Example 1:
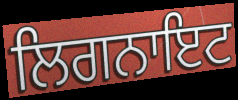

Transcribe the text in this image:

ਲਿਗਨਾਇਟ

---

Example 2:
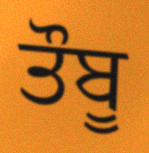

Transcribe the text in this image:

ਤੌਬੂ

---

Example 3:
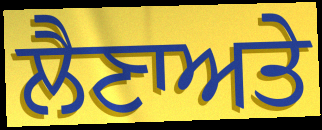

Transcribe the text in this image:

ਲੈਣਾਅਤੇ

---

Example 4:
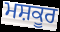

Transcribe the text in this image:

ਮਸ਼ਕੂਰ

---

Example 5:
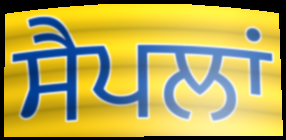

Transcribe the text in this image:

ਸੈਪਲਾਂ